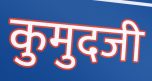
कुमुदजी